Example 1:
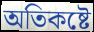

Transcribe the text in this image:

অতিকষ্টে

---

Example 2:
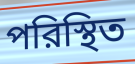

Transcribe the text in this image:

পরিস্থিত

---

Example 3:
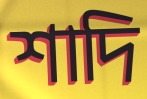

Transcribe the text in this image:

শাদি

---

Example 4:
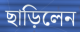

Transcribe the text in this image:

ছাড়িলেন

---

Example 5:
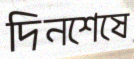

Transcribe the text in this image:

দিনশেষে